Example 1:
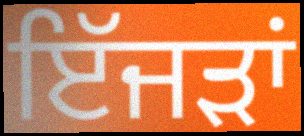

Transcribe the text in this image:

ਇੱਜੜਾਂ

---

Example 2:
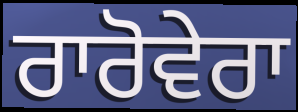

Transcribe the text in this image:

ਰਾਰੋਵੇਰਾ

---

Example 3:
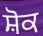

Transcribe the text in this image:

ਸ਼ੋਕ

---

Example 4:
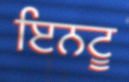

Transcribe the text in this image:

ਇਨਟੂ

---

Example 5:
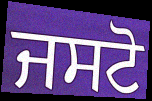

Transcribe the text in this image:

ਜਸਟੋ